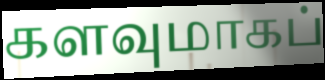
களவுமாகப்